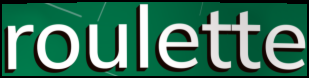
roulette